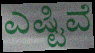
ಎಷ್ಟಿವೆ